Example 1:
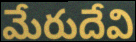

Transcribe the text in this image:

మేరుదేవి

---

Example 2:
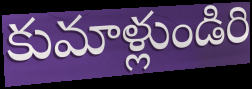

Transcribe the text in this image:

కుమాళ్లుండిరి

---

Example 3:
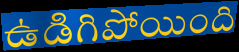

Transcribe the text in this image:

ఉడిగిపోయింది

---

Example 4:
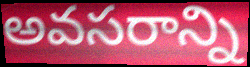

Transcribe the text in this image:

అవసరాన్ని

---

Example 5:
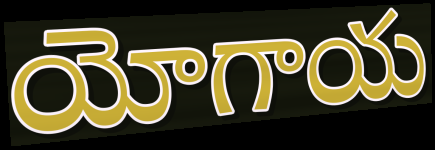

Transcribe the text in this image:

యోగాయ